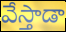
వేస్తాడా